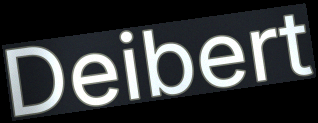
Deibert